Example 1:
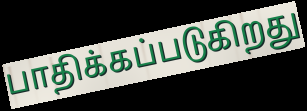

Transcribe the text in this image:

பாதிக்கப்படுகிறது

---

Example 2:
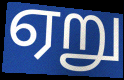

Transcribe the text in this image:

ஏறு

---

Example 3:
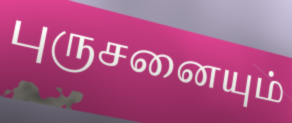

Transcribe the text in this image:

புருசனையும்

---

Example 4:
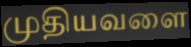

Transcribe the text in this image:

முதியவளை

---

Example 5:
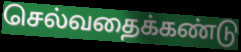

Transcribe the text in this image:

செல்வதைக்கண்டு